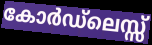
കോർഡ്ലെസ്സ്